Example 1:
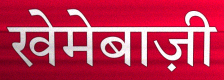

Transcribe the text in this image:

खेमेबाज़ी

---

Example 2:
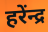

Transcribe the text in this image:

हरेंन्द्र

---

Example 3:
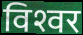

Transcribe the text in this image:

विश्वर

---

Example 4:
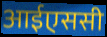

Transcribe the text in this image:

आईएससी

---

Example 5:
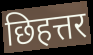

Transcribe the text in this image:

छिहत्तर